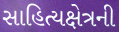
સાહિત્યક્ષેત્રની